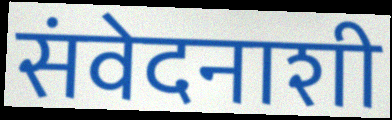
संवेदनाशी